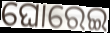
ଘୋରେଇ